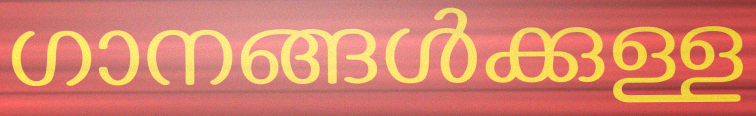
ഗാനങ്ങൾക്കുള്ള